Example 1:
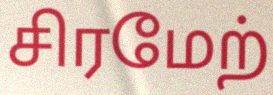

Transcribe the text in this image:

சிரமேற்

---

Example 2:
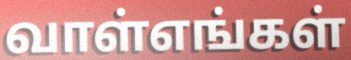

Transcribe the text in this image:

வாள்எங்கள்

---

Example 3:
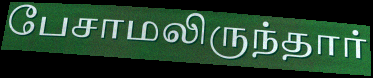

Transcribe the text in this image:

பேசாமலிருந்தார்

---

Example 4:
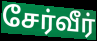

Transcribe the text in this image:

சேர்வீர்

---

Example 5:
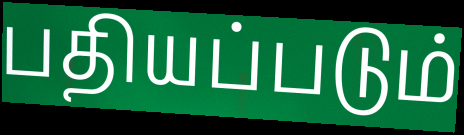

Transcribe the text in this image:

பதியப்படும்